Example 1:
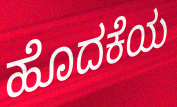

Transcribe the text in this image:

ಹೊದಕೆಯ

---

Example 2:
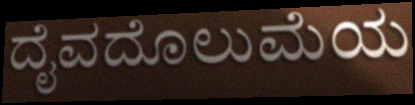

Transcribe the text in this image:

ದೈವದೊಲುಮೆಯ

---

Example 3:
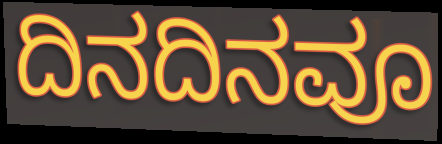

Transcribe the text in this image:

ದಿನದಿನವೂ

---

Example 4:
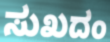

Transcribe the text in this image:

ಸುಖದಂ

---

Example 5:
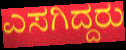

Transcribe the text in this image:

ಎಸಗಿದ್ದರು